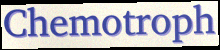
Chemotroph